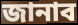
জানাব